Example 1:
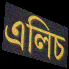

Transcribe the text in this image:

এলিচ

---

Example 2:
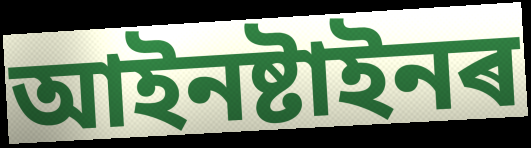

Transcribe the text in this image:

আইনষ্টাইনৰ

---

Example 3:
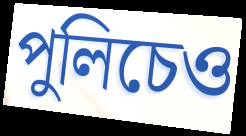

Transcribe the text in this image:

পুলিচেও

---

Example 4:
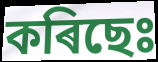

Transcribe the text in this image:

কৰিছেঃ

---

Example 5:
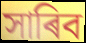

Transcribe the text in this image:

সাৰিব